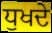
ਧੁਖਦੇ